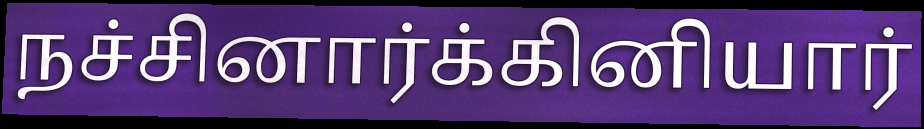
நச்சினார்க்கினியார்